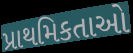
પ્રાથમિકતાઓ